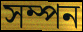
সম্পন